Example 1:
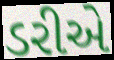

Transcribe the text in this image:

ડરીએ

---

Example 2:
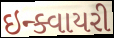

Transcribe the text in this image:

ઇન્ક્વાયરી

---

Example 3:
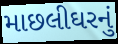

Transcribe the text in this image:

માછલીઘરનું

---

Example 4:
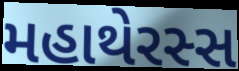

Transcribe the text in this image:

મહાથેરસ્સ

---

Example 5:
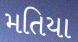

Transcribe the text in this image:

મતિયા